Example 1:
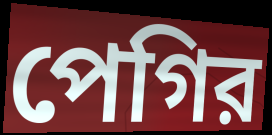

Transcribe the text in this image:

পেগির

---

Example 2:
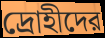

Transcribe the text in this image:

দ্রোহীদের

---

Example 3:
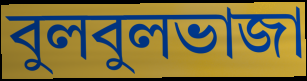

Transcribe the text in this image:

বুলবুলভাজা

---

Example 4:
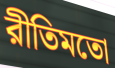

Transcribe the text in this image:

রীতিমতো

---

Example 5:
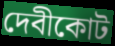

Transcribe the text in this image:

দেবীকোট